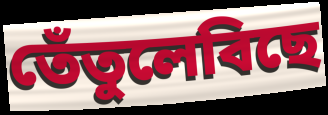
তেঁতুলেবিছে